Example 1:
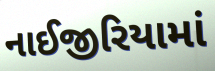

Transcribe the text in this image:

નાઈજીરિયામાં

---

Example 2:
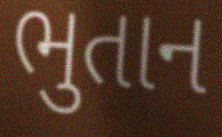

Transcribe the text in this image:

ભુતાન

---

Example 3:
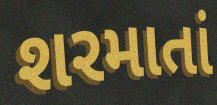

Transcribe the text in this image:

શરમાતાં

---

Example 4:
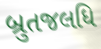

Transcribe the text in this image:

બ્રુતજલધિ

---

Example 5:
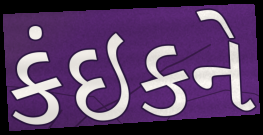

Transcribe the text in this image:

કંઇકને